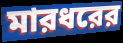
মারধরের